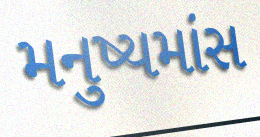
મનુષ્યમાંસ